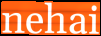
nehai